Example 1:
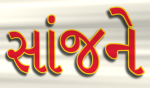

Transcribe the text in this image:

સાંજને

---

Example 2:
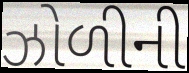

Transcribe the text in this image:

ઝોળીની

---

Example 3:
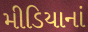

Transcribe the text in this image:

મીડિયાનાં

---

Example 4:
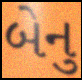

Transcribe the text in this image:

બેનુ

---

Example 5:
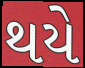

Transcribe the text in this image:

થયે